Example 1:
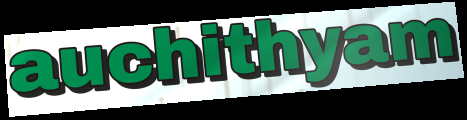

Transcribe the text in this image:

auchithyam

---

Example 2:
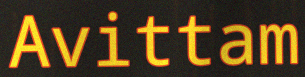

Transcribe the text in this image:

Avittam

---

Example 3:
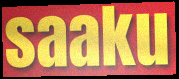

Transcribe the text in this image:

saaku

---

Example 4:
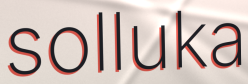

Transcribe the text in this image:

solluka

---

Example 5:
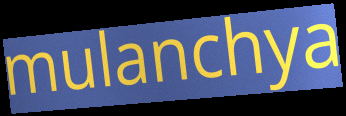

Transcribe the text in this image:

mulanchya